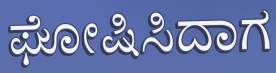
ಘೋಷಿಸಿದಾಗ